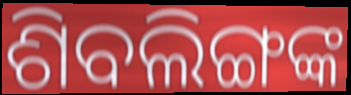
ଶିବଲିଙ୍ଗଙ୍କ